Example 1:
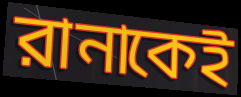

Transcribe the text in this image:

রানাকেই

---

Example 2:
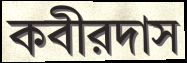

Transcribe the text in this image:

কবীরদাস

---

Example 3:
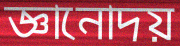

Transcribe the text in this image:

জ্ঞানোদয়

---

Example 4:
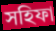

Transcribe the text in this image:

সহিফা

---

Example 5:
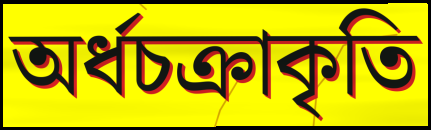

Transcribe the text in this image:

অর্ধচক্রাকৃতি